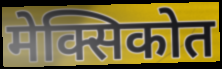
मेक्सिकोत